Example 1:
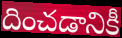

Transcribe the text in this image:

దించడానికీ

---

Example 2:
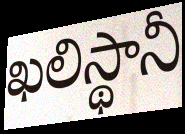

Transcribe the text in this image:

ఖలిస్థానీ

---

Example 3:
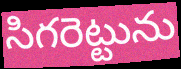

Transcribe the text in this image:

సిగరెట్టును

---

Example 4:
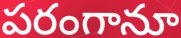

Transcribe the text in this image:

పరంగానూ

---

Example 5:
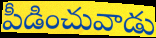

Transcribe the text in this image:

పీడించువాడు